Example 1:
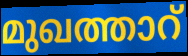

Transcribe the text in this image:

മുഖത്താറ്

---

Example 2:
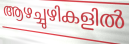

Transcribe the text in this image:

ആഴച്ചുഴികളിൽ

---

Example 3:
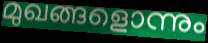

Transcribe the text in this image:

മുഖങ്ങളൊന്നും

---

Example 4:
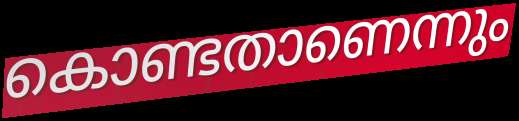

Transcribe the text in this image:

കൊണ്ടതാണെന്നും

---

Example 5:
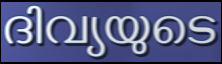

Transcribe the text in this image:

ദിവ്യയുടെ